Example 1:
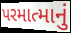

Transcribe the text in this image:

પરમાત્માનું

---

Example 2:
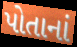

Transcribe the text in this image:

પોતાનાં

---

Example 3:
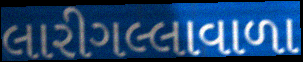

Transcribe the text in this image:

લારીગલ્લાવાળા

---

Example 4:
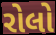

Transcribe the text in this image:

રોલો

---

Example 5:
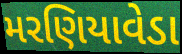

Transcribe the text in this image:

મરણિયાવેડા